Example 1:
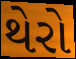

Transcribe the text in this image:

થેરો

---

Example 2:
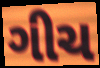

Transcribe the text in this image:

ગીચ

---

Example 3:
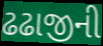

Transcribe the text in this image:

ઢઢાજીની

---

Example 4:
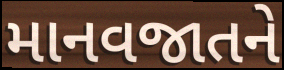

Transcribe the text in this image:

માનવજાતને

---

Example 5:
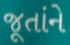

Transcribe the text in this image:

જૂતાંને